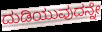
ದುಡಿಯುವುದನ್ನೇ